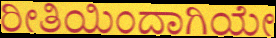
ರೀತಿಯಿಂದಾಗಿಯೇ